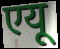
एयू